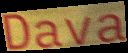
Dava